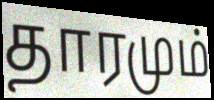
தாரமும்